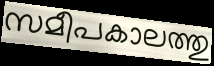
സമീപകാലത്തു